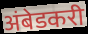
अंबेडकरी